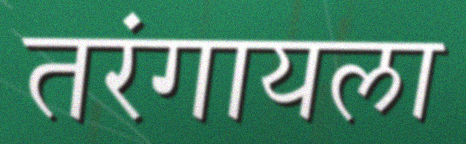
तरंगायला